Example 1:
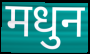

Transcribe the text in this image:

मधुन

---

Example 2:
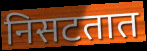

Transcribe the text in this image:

निसटतात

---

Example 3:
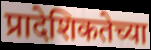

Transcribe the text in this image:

प्रादेशिकतेच्या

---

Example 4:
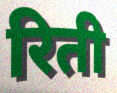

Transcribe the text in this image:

रिती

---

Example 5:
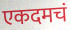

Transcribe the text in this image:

एकदमचं